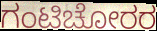
ಗಂಟಿಚೋರರ